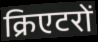
क्रिएटरों